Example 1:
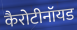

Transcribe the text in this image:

कैरोटीनॉयड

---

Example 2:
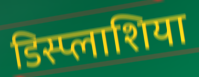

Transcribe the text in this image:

डिस्प्लाशिया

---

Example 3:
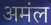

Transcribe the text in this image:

अमंल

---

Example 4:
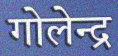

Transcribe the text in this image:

गोलेन्द्र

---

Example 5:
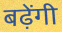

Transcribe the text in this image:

बढ़ेंगी